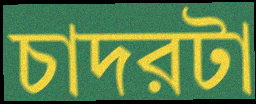
চাদরটা